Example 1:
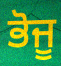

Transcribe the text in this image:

ਭੋਜੂ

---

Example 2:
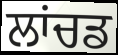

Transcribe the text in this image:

ਲਾਂਚਡ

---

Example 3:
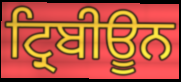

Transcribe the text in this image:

ਟ੍ਰਿਬੀਊਨ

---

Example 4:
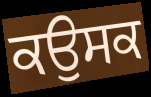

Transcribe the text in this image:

ਕਉਸਕ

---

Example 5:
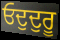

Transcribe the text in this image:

ਓਦੁਦੁਰੂ